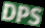
DPS